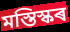
মস্তিস্কৰ